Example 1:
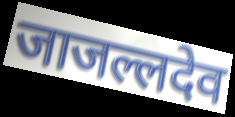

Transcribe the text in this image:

जाजल्लदेव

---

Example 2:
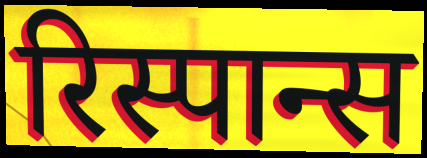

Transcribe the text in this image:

रिस्पान्स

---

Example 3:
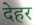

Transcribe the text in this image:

देहर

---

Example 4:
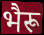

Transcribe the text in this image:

भैरू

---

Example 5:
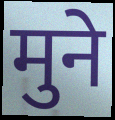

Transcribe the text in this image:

मुने